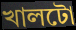
খালটো